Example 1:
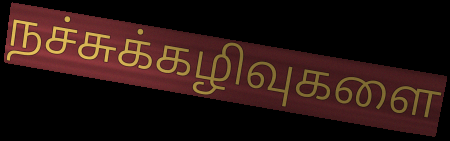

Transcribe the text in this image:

நச்சுக்கழிவுகளை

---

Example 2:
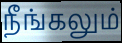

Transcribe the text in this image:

நீங்கலும்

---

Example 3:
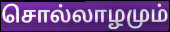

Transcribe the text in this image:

சொல்லாழமும்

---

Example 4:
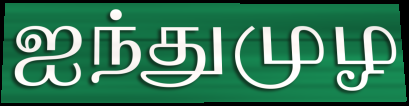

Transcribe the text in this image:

ஐந்துமுழ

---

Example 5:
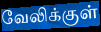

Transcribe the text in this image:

வேலிக்குள்